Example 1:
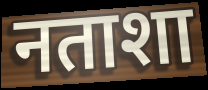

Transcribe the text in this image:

नताशा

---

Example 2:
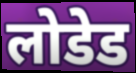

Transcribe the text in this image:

लोडेड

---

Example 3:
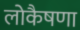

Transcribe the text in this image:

लोकैषणा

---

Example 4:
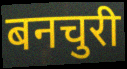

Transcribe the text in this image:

बनचुरी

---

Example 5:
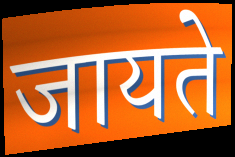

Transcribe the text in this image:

जायते